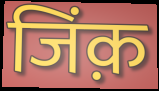
जिंक़